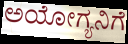
ಅಯೋಗ್ಯನಿಗೆ